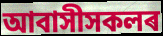
আবাসীসকলৰ